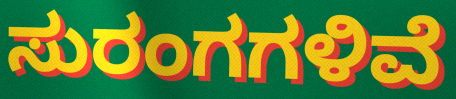
ಸುರಂಗಗಳಿವೆ